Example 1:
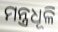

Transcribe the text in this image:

ମନ୍ତ୍ରଧୂଳି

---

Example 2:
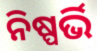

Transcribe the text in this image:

ନିଷ୍ପର୍ଭି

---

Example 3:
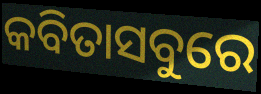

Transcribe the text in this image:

କବିତାସବୁରେ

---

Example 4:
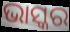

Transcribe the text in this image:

ଭାସ୍କର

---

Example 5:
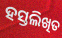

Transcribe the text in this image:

ହସ୍ତଲିଖିତ